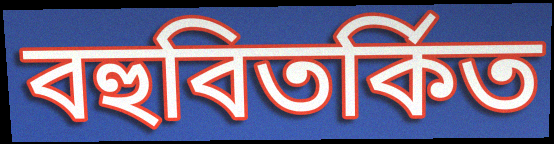
বহুবিতর্কিত